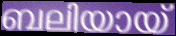
ബലിയായ്